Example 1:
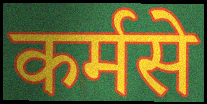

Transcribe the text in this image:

कर्मसे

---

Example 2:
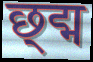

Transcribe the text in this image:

छ्द्म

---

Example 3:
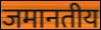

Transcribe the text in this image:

जमानतीय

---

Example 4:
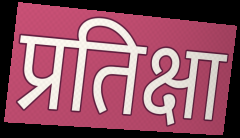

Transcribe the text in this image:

प्रतिक्षा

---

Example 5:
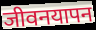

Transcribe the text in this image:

जीवनयापन